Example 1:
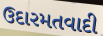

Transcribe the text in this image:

ઉદારમતવાદી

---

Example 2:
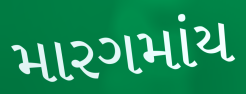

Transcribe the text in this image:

મારગમાંય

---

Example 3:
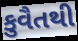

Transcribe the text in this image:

કુવૈતથી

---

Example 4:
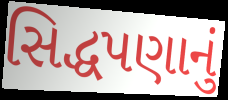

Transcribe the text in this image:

સિદ્ધપણાનું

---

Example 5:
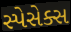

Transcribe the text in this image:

સ્પેસેક્સ